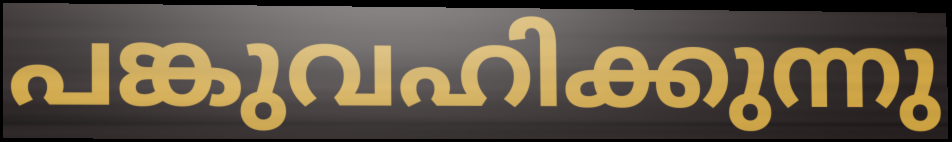
പങ്കുവഹിക്കുന്നു